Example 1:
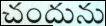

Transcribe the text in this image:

చందును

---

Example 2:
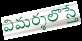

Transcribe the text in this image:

విమర్శలొస్తే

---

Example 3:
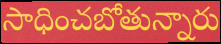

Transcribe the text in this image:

సాధించబోతున్నారు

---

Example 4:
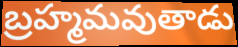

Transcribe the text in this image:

బ్రహ్మమవుతాడు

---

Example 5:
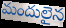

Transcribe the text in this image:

మందులైన